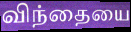
விந்தையை